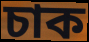
চাক